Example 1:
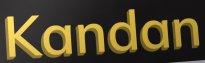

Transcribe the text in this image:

Kandan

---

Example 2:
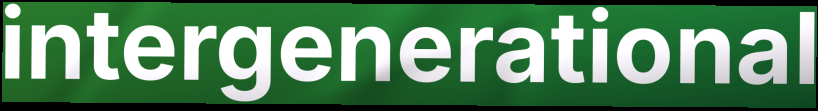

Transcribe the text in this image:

intergenerational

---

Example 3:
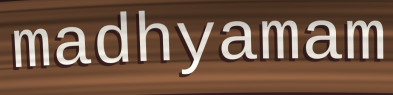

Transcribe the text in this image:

madhyamam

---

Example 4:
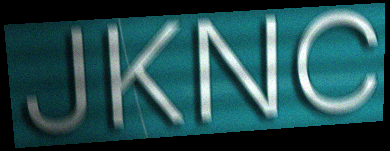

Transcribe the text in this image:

JKNC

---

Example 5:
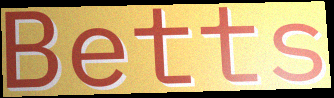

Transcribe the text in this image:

Betts